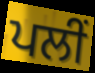
ਪਲੀਂ